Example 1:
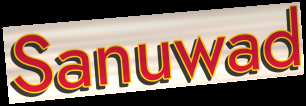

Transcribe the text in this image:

Sanuwad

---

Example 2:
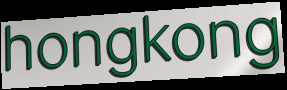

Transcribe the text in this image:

hongkong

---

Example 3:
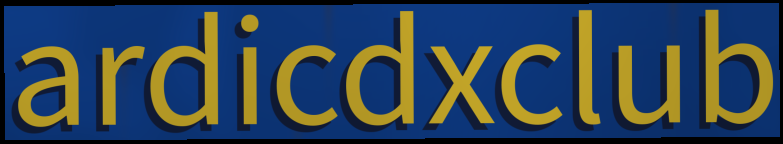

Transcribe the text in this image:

ardicdxclub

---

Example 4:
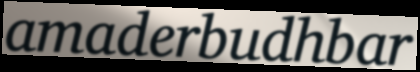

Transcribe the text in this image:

amaderbudhbar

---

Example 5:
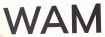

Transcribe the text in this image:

WAM